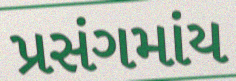
પ્રસંગમાંય